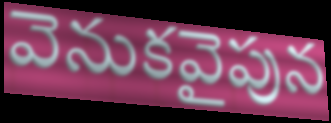
వెనుకవైపున